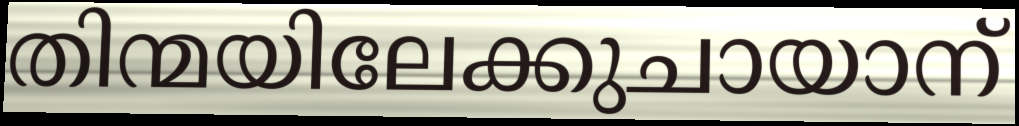
തിന്മയിലേക്കുചായാന്